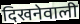
दिखनेवाली